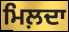
ਮਿਲ਼ਦਾ